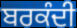
ਬਰਕੰਦੀ